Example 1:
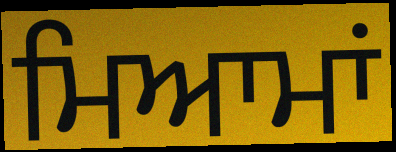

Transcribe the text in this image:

ਮਿਆਮਾਂ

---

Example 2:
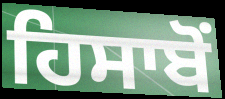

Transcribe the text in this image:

ਹਿਸਾਬੋਂ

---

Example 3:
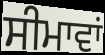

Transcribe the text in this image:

ਸੀਮਾਵਾਂ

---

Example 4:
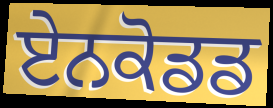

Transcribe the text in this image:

ਏਨਕੋਡਡ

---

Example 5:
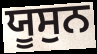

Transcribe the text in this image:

ਯੂਸੁਨ